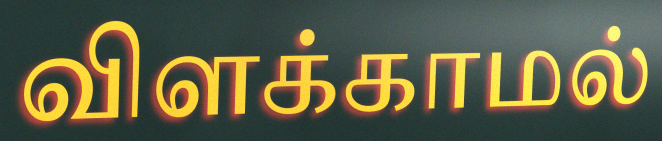
விளக்காமல்